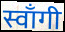
स्वाँगी